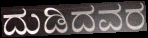
ದುಡಿದವರ